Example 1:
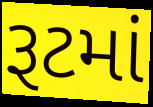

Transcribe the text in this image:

રૂટમાં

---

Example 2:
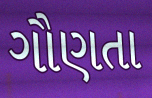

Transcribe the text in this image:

ગૌણતા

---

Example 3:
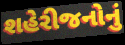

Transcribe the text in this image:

શહેરીજનોનું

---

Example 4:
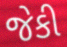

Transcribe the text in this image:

જેકી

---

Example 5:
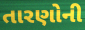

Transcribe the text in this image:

તારણોની